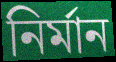
নিৰ্মান